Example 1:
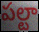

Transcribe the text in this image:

పల్టా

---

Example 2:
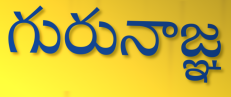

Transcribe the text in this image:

గురునాజ్ఞ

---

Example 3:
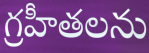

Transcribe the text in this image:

గ్రహీతలను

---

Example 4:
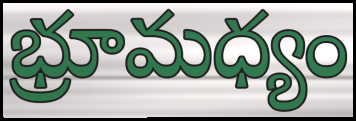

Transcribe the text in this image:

భ్రూమధ్యం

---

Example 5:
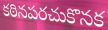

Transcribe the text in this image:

కఠినపరచుకొనక